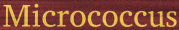
Micrococcus